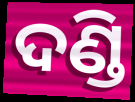
ଦଣ୍ଡି